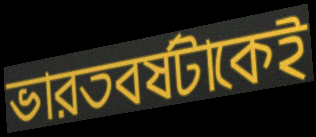
ভারতবর্ষটাকেই